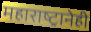
महाराष्ट्रानेही